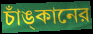
চাঁঙ্‌কানের